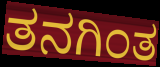
ತನಗಿಂತ